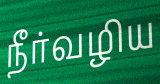
நீர்வழிய